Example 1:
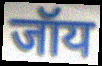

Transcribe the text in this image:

जॉय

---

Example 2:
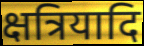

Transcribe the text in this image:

क्षत्रियादि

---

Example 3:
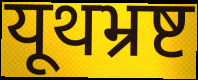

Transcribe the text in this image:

यूथभ्रष्ट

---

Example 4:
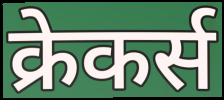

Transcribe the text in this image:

क्रेकर्स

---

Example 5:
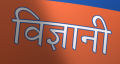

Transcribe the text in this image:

विज्ञानी